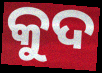
କୁଦ